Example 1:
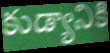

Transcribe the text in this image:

కుడ్యానికి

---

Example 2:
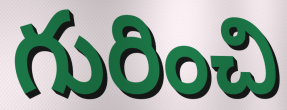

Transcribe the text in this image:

గురించి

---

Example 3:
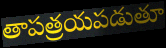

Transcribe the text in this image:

తాపత్రయపడుతూ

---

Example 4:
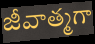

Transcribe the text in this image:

జీవాత్మగా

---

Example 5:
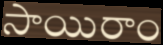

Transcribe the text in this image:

సాయిరాం